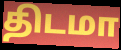
திடமா